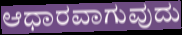
ಆಧಾರವಾಗುವುದು